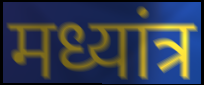
मध्यांत्र